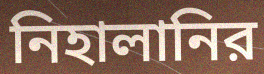
নিহালানির